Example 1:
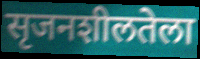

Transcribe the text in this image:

सृजनशीलतेला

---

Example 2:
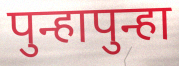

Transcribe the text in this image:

पुन्हापुन्हा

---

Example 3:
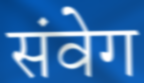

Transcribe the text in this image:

संवेग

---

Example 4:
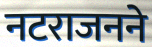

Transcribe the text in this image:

नटराजनने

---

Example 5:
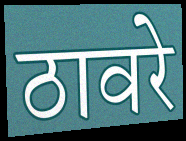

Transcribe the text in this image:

ठावरे